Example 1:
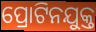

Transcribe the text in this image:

ପ୍ରୋଟିନଯୁକ୍ତ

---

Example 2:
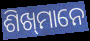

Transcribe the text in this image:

ଶିଖ୍‌ମାନେ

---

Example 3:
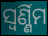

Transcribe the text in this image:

ସ୍ୱର୍ଣ୍ଣିମ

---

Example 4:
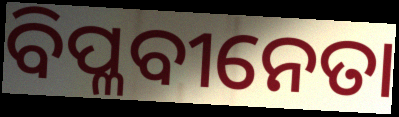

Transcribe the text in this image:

ବିପ୍ଳବୀନେତା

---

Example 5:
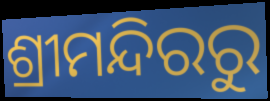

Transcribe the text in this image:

ଶ୍ରୀମନ୍ଦିରରୁ